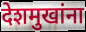
देशमुखांना